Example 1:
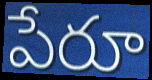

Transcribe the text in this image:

పేరూ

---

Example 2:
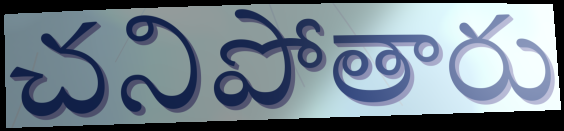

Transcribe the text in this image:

చనిపోతారు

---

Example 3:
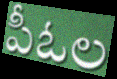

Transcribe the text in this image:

పీఓల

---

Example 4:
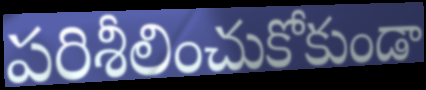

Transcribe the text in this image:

పరిశీలించుకోకుండా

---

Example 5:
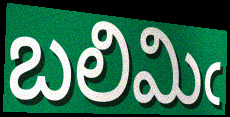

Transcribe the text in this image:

బలిమిఁ